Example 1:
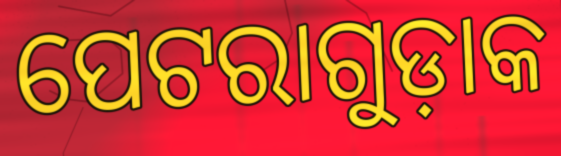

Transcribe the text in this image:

ପେଟରାଗୁଡ଼ାକ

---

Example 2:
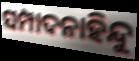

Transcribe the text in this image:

ସମ୍ପାଦନାହିନ୍ଦୁ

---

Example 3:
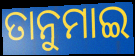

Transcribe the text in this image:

ତାନୁମାଇ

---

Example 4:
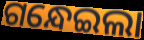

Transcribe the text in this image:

ଗନ୍ଧେଇଲା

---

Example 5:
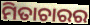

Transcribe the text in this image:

ମିତାଚାରର